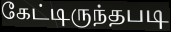
கேட்டிருந்தபடி